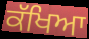
ਕੱਖਿਆ